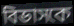
বিভাসকে